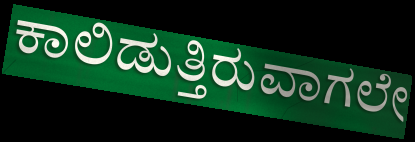
ಕಾಲಿಡುತ್ತಿರುವಾಗಲೇ